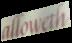
alloweth